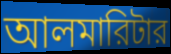
আলমারিটার